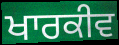
ਖਾਰਕੀਵ